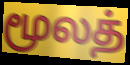
மூலத்